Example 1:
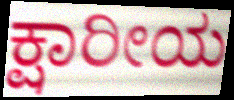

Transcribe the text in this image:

ಕ್ಷಾರೀಯ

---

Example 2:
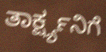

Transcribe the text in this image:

ತಾರ್ಕ್ಷ್ಯನಿಗೆ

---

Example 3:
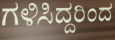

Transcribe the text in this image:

ಗಳಿಸಿದ್ದರಿಂದ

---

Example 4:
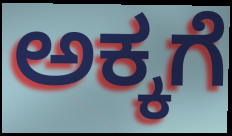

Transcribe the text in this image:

ಅಕ್ಕಗೆ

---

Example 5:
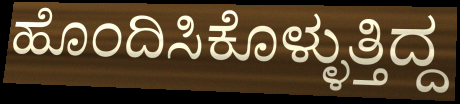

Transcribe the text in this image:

ಹೊಂದಿಸಿಕೊಳ್ಳುತ್ತಿದ್ದ